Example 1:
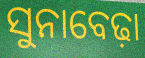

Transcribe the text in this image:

ସୁନାବେଢ଼ା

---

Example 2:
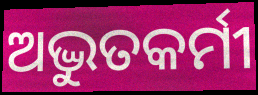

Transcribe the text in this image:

ଅଦ୍ଭୁତକର୍ମୀ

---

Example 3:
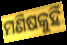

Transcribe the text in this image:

ମଣିଷକୁହିଁ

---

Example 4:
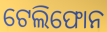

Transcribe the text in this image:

ଟେଲିଫୋନ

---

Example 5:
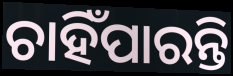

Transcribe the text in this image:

ଚାହିଁପାରନ୍ତି